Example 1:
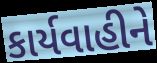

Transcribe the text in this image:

કાર્યવાહીને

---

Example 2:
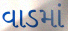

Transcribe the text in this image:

વાડમાં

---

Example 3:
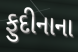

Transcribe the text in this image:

ફુદીનાના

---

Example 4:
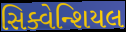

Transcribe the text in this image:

સિક્વેન્શિયલ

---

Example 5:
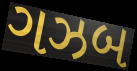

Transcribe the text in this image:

ગઝબ